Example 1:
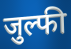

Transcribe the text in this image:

जुल्फी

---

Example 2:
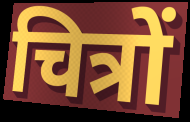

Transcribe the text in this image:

चित्रों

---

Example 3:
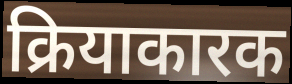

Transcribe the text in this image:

क्रियाकारक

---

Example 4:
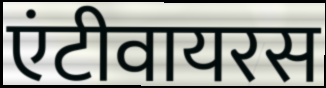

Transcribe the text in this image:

एंटीवायरस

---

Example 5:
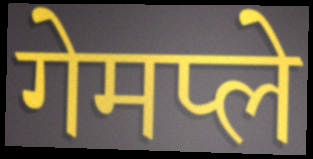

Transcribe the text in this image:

गेमप्ले